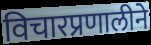
विचारप्रणालीने